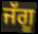
ਜੱਗੂ